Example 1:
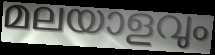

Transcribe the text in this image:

മലയാളവും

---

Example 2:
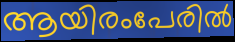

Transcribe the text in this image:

ആയിരംപേരിൽ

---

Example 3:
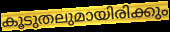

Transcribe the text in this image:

കൂടുതലുമായിരിക്കും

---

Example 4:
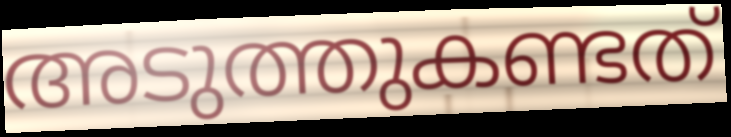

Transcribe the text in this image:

അടുത്തുകണ്ടത്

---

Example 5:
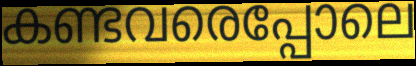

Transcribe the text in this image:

കണ്ടവരെപ്പോലെ